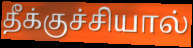
தீக்குச்சியால்